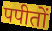
पपीतों